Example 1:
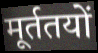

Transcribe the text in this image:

मूर्ततयों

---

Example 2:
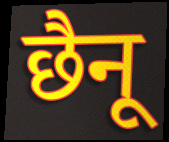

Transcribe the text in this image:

छैनू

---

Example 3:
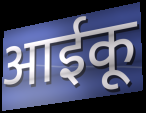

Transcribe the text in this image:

आईकू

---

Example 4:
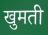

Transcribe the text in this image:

खुमती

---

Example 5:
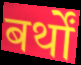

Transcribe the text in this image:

बर्थों